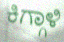
ಕಿಗ್ಗಾಳಿ